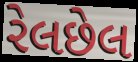
રેલછેલ